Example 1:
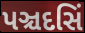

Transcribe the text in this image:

પઞ્ચદસિં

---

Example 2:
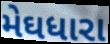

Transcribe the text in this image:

મેઘધારા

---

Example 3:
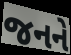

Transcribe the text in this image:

જનને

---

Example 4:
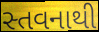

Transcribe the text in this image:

સ્તવનાથી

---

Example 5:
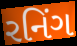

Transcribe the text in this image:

રનિંગ